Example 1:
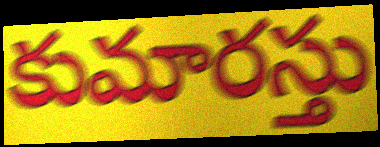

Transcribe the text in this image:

కుమారస్తు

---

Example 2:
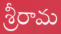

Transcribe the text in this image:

శ్రీరామ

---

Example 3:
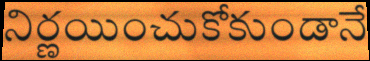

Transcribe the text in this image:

నిర్ణయించుకోకుండానే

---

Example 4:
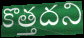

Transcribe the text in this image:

కొత్తదని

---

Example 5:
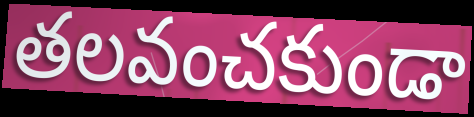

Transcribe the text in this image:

తలవంచకుండా